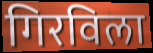
गिरविला